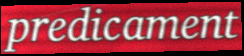
predicament